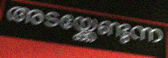
അടയ്ക്കേണ്ടുന്ന